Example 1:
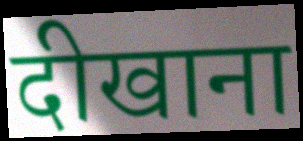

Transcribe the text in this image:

दीखाना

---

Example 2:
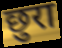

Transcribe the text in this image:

छुरा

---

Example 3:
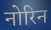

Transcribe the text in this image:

नोरिन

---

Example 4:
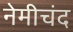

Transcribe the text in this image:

नेमीचंद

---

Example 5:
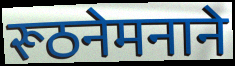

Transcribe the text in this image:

रूठनेमनाने